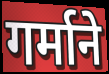
गर्माने